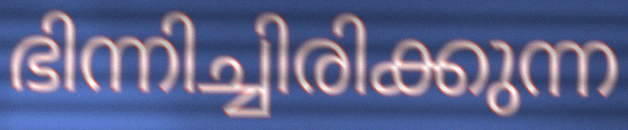
ഭിന്നിച്ചിരിക്കുന്ന